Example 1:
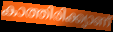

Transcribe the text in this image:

കാത്തിരിക്ക്യാണ്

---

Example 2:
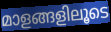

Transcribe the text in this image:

മാളങ്ങളിലൂടെ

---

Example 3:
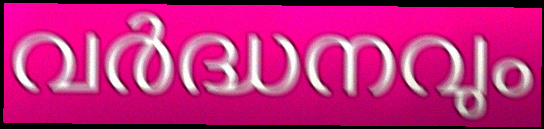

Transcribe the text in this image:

വർദ്ധനവും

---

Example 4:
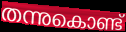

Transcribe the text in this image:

തന്നുകൊണ്ട്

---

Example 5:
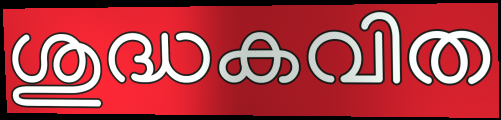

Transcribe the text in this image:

ശുദ്ധകവിത